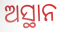
ଅସ୍ଥାନ